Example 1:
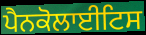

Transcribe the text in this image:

ਪੈਨਕੋਲਾਈਟਿਸ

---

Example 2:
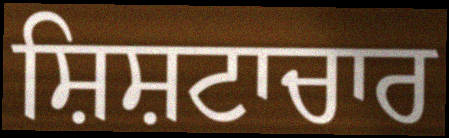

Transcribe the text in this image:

ਸ਼ਿਸ਼ਟਾਚਾਰ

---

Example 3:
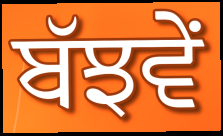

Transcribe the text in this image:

ਬੱਝਵੇਂ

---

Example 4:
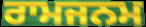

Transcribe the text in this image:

ਰਾਮਜਨਮ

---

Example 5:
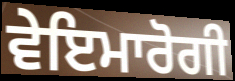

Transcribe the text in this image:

ਵੇਇਮਾਰੋਗੀ